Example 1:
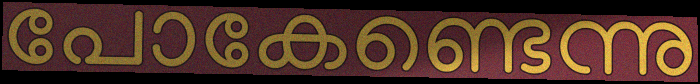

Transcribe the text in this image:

പോകേണ്ടെന്നു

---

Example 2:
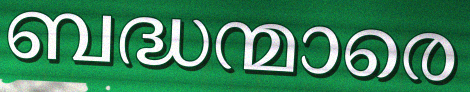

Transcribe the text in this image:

ബദ്ധന്മാരെ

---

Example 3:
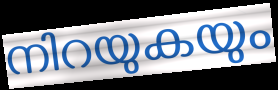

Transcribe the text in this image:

നിറയുകയും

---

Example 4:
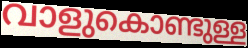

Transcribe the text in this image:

വാളുകൊണ്ടുള്ള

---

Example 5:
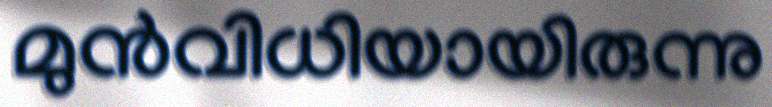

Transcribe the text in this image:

മുൻവിധിയായിരുന്നു